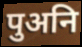
पुअनि